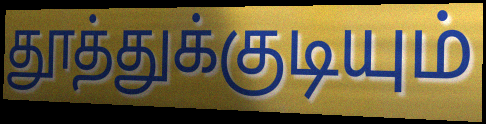
தூத்துக்குடியும்